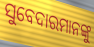
ସୁବେଦାରମାନଙ୍କୁ